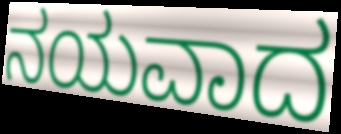
ನಯವಾದ